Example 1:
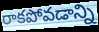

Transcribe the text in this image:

రాకపోవడాన్ని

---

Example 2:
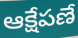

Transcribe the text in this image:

ఆక్షేపణే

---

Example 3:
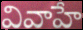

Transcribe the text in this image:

వివాహే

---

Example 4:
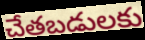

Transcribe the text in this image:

చేతబడులకు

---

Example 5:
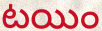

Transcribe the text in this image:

టయిం